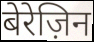
बेरेज़िन